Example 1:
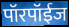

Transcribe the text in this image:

पॉरपॉईज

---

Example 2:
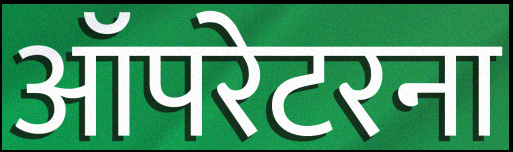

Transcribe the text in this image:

ऑपरेटरना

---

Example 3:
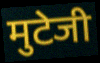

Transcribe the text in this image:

मुटेजी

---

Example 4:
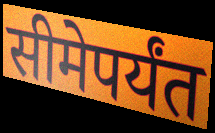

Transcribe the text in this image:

सीमेपर्यंत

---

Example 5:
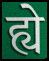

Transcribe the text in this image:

ह्ये